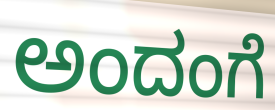
ಅಂದಂಗೆ